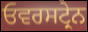
ਓਵਰਸਟ੍ਰੇਨ